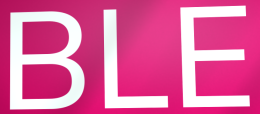
BLE